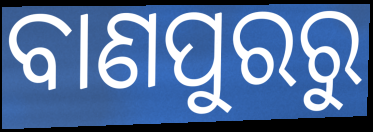
ବାଣପୁରରୁ